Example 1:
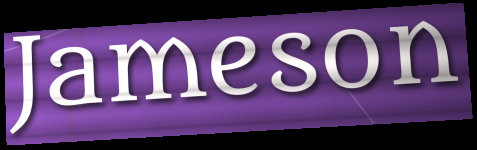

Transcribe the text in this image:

Jameson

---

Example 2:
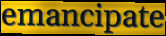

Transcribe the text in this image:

emancipate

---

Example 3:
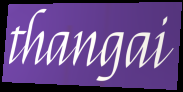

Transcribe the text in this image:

thangai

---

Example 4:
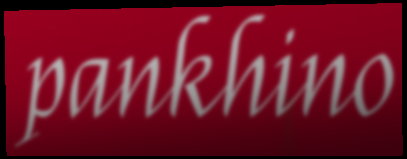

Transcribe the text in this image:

pankhino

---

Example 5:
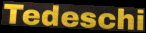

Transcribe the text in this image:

Tedeschi